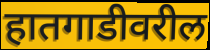
हातगाडीवरील